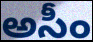
అసీం